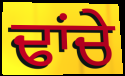
ਢਾਂਚੇ